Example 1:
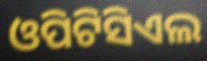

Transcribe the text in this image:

ଓପିଟିସିଏଲ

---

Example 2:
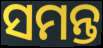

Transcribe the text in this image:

ସମନ୍ତ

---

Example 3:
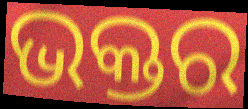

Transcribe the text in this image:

ଭକ୍ତର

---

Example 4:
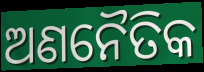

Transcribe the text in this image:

ଅଣନୈତିକ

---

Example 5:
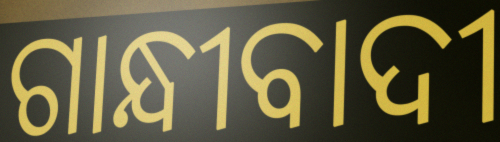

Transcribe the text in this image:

ଗାନ୍ଧୀବାଦୀ